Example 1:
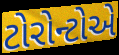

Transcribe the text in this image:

ટોરોન્ટોએ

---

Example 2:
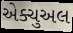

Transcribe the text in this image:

એક્ચુઅલ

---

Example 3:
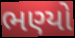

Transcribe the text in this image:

ભણ્યો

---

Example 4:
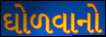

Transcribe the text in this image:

ઘોળવાનો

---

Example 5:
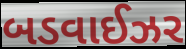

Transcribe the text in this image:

બડવાઈઝર